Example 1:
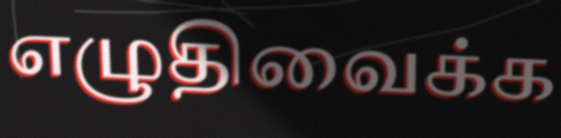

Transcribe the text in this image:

எழுதிவைக்க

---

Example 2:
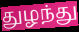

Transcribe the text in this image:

துழந்து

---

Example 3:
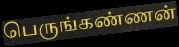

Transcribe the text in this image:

பெருங்கண்ணன்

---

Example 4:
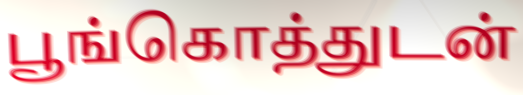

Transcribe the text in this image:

பூங்கொத்துடன்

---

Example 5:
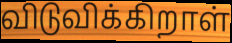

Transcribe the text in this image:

விடுவிக்கிறாள்